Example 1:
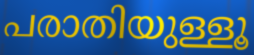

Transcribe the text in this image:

പരാതിയുള്ളൂ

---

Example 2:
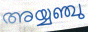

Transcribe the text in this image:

അയ്യഞ്ചു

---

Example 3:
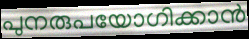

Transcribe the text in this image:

പുനരുപയോഗിക്കാൻ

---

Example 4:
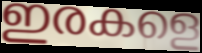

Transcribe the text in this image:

ഇരകളെ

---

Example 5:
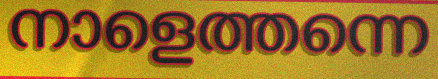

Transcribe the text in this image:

നാളെത്തന്നെ